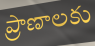
ప్రాణాలకు